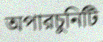
অপারচুনিটি